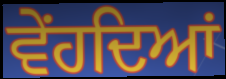
ਵੇਂਹਦਿਆਂ